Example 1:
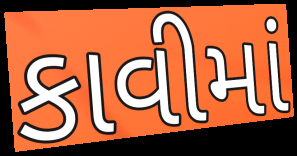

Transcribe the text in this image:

કાવીમાં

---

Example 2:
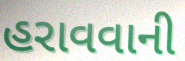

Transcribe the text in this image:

હરાવવાની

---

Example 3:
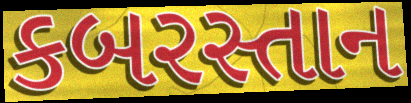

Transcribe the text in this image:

કબરસ્તાન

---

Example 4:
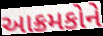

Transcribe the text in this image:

આક્રમકોને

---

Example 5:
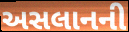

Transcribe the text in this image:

અસલાનની